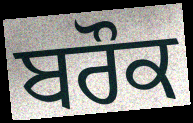
ਬਰੌਕ